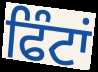
ਫਿੰਟਾਂ